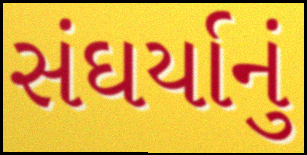
સંઘર્યાનું